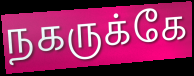
நகருக்கே